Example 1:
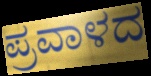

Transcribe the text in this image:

ಪ್ರವಾಳದ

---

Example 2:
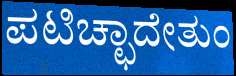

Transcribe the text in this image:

ಪಟಿಚ್ಛಾದೇತುಂ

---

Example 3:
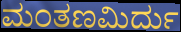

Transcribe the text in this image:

ಮಂತಣಮಿರ್ದು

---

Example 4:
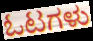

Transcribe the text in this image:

ಓಟಗಳು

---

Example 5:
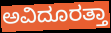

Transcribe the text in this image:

ಅವಿದೂರತ್ತಾ